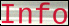
Info